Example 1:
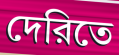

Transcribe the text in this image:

দেরিতে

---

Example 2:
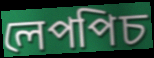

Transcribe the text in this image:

লেপপিচ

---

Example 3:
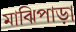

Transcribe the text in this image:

মাঝিপাড়া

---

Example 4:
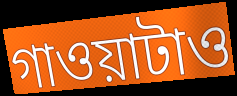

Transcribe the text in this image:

গাওয়াটাও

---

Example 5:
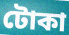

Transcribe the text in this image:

টোকা